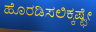
ಹೊರಡಿಸಲಿಕ್ಕಷ್ಟೇ